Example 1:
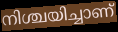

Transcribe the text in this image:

നിശ്ചയിച്ചാണ്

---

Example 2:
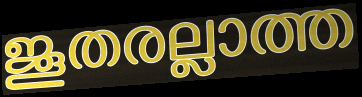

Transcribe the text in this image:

ജൂതരല്ലാത്ത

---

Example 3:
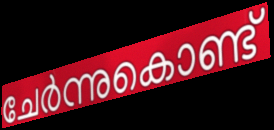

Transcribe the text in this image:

ചേർന്നുകൊണ്ട്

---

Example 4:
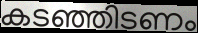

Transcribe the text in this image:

കടഞ്ഞിടണം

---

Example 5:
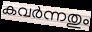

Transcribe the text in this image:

കവർന്നതും